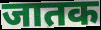
जातक